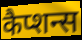
कैप्शन्स